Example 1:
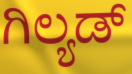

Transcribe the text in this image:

ಗಿಲ್ಯಡ್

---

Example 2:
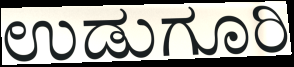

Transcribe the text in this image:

ಉಡುಗೂರಿ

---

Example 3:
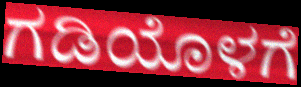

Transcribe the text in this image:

ಗಡಿಯೊಳಗೆ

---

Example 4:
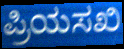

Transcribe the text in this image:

ಪ್ರಿಯಸಖಿ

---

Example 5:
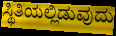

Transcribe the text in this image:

ಸ್ಥಿತಿಯಲ್ಲಿಡುವುದು